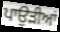
ਪਾਉੜੀਆਂ